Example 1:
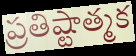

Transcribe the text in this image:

ప్రతిష్టాత్మక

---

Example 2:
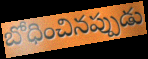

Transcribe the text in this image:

బోధించినప్పుడు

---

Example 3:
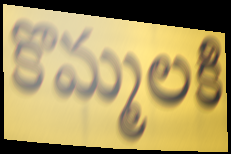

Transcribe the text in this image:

కొమ్మలకి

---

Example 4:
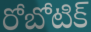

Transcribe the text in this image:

రోబోటిక్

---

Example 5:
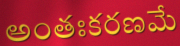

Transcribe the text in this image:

అంతఃకరణమే